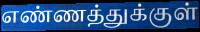
எண்ணத்துக்குள்